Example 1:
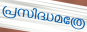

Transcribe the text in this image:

പ്രസിദ്ധമത്രേ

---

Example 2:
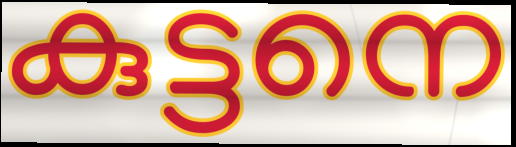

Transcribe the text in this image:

കുട്ടനെ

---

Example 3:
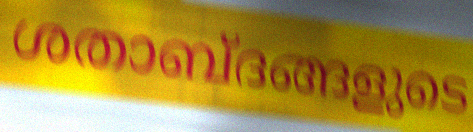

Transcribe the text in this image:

ശതാബ്ദങ്ങളുടെ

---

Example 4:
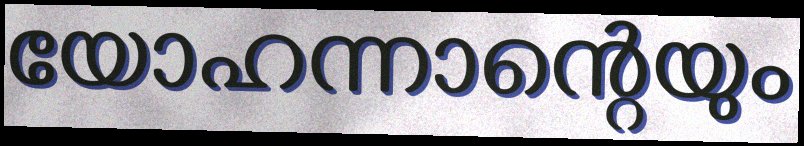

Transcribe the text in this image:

യോഹന്നാന്റെയും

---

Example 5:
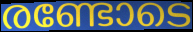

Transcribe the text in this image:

രണ്ടോടെ